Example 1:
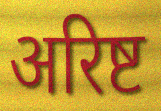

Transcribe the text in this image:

अरिष्ट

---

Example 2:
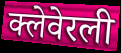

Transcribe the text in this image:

क्लेवेरली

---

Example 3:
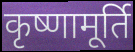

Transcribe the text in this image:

कृष्णामूर्ति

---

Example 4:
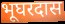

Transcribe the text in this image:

भूघरदास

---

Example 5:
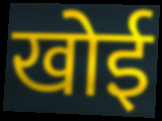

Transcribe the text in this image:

खोई